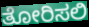
ತೋರಿಸಲಿ